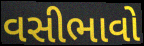
વસીભાવો